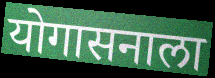
योगासनाला